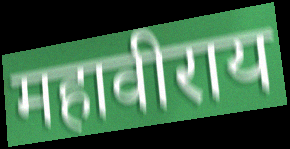
महावीराय